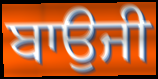
ਬਾਉਜੀ